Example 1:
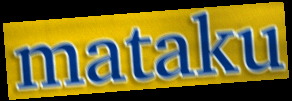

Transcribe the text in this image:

mataku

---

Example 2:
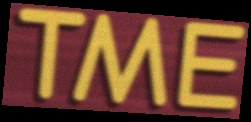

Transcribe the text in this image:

TME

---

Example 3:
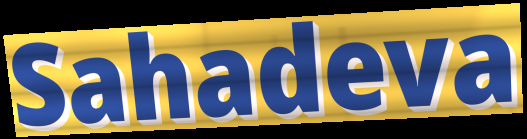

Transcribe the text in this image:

Sahadeva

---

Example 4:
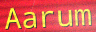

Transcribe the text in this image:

Aarum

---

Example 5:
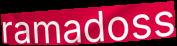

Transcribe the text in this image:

ramadoss